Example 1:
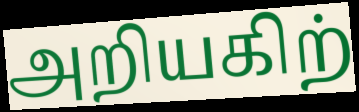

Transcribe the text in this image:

அறியகிற்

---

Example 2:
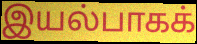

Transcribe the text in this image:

இயல்பாகக்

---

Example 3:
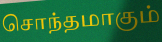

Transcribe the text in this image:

சொந்தமாகும்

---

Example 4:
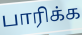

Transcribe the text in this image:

பாரிக்க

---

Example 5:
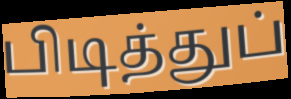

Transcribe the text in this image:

பிடித்துப்